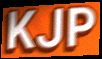
KJP